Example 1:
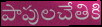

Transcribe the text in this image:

పాపులచేతికి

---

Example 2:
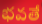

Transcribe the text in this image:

భవతే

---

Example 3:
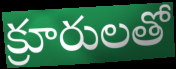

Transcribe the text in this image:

క్రూరులతో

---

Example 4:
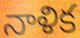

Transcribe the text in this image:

నాళిక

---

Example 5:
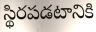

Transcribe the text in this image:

స్థిరపడటానికి